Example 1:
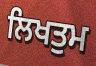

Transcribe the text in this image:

ਲਿਖਤੁਮ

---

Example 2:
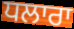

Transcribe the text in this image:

ਧਲਾਰਾ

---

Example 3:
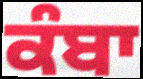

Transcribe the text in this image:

ਕੰਬਾ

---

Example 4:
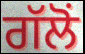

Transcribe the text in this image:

ਗੱਲੋਂ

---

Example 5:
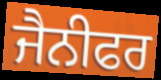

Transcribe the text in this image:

ਜੈਨੀਫਰ